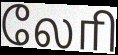
லேரி